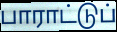
பாராட்டுப்